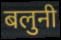
बलुनी